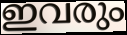
ഇവരും